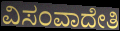
ವಿಸಂವಾದೇತಿ